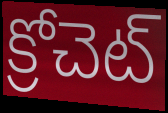
క్రోచెట్